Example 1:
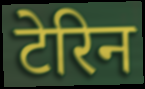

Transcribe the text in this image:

टेरिन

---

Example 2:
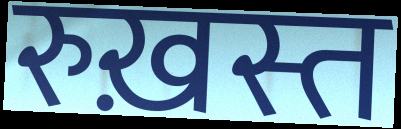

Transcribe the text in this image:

रुख़स्त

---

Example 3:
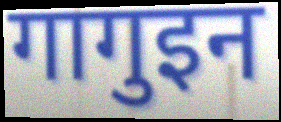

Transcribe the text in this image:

गागुइन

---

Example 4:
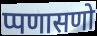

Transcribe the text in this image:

प्पणासणो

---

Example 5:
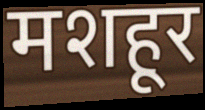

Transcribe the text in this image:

मशहूर